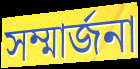
সম্মার্জনা